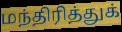
மந்திரித்துக்